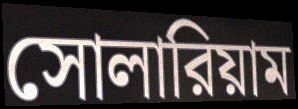
সোলারিয়াম